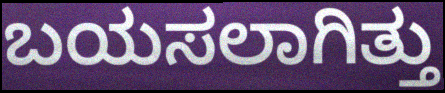
ಬಯಸಲಾಗಿತ್ತು